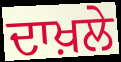
ਦਾਖ਼ਲੇ